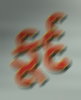
કૂર્દ